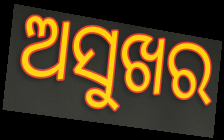
ଅସୁଖର